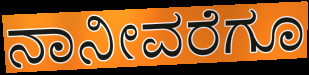
ನಾನೀವರೆಗೂ